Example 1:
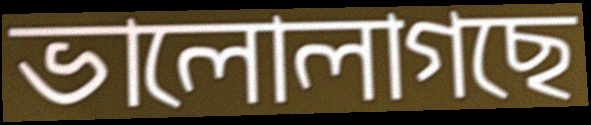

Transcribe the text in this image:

ভালোলাগছে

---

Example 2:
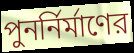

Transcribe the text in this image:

পুনর্নির্মাণের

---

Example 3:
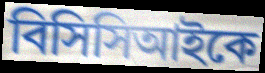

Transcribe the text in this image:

বিসিসিআইকে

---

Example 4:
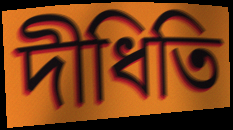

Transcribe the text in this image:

দীধিতি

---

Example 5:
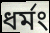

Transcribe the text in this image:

ধর্মং